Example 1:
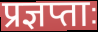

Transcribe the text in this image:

प्रज्ञप्ताः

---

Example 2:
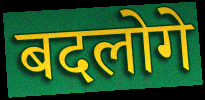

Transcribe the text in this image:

बदलोगे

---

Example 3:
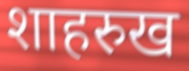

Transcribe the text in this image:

शाहरुख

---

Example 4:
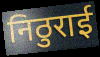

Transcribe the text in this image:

निठुराई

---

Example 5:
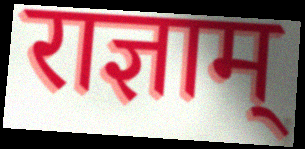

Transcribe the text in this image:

राज्ञाम्